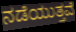
ನಡೆಯುತ್ತವೆ